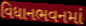
વિધાનભવનમાં